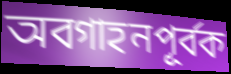
অবগাহনপূর্বক